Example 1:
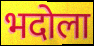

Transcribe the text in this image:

भदोला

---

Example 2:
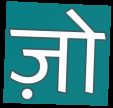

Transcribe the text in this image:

ज़ो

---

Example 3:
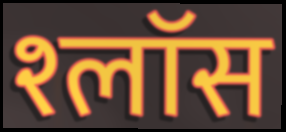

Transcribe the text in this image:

श्लॉस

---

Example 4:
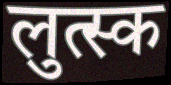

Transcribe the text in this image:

लुत्स्क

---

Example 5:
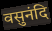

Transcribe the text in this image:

वसुनंदि